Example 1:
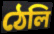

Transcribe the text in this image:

ঠেলি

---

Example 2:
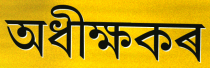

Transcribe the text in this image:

অধীক্ষকৰ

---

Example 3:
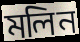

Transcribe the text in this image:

মলিন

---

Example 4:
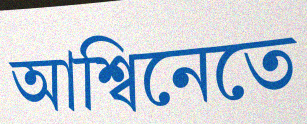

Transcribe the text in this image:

আশ্বিনেতে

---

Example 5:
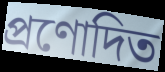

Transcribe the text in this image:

প্ৰণোদিত